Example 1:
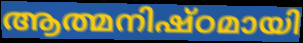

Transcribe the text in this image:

ആത്മനിഷ്ഠമായി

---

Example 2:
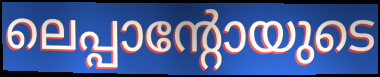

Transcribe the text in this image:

ലെപ്പാന്റോയുടെ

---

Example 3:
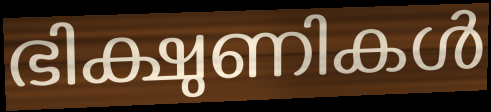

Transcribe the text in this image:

ഭിക്ഷുണികൾ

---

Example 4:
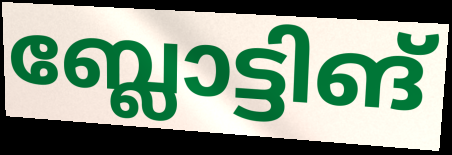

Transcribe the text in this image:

ബ്ലോട്ടിങ്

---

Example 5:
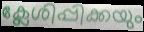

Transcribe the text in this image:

ക്ലേശിപ്പിക്കയും